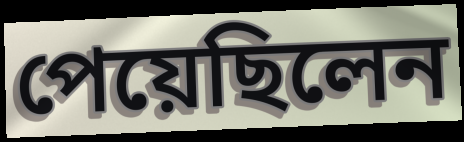
পেয়েছিলেন